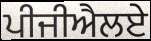
ਪੀਜੀਐਲਏ